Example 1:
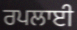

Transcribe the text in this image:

ਰਪਲਾਈ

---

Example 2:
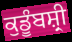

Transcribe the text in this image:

ਕੁਡੂੰਬਸ਼੍ਰੀ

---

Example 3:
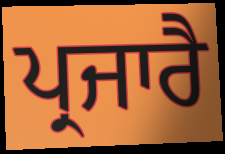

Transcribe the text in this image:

ਪ੍ਰਜਾਰੈ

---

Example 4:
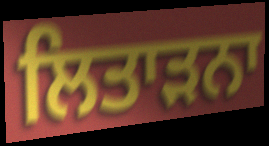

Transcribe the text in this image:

ਲਿਤਾੜਨਾ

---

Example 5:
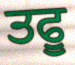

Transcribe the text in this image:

ਤਫੂ